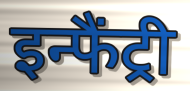
इन्फैंट्री